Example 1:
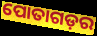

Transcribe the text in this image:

ପୋତାଗଡ଼ର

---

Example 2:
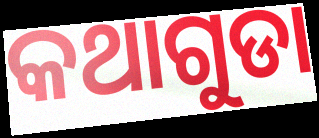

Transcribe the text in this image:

କଥାଗୁଡା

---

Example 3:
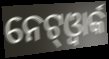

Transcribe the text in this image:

ନେଟ୍ଓ୍ବାର୍କ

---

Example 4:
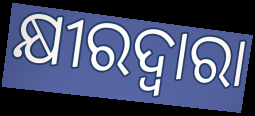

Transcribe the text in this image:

କ୍ଷୀରଦ୍ଵାରା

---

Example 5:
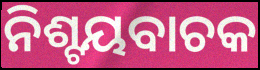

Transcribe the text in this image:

ନିଶ୍ଟୟବାଚକ